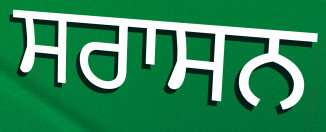
ਸਰਾਸਨ